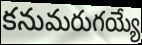
కనుమరుగయ్యే